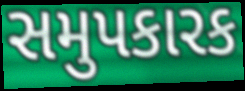
સમુપકારક